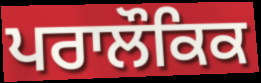
ਪਰਾਲੌਕਿਕ